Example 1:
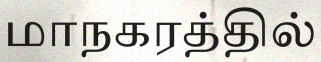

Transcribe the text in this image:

மாநகரத்தில்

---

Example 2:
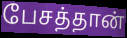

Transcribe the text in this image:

பேசத்தான்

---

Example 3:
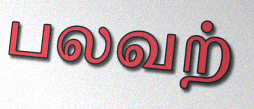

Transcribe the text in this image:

பலவற்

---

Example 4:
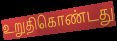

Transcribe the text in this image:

உறுதிகொண்டது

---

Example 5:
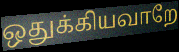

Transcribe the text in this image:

ஒதுக்கியவாறே